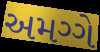
અમગ્ગે